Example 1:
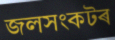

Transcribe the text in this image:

জলসংকটৰ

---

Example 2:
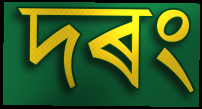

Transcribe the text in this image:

দৰং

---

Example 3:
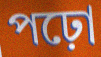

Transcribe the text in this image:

পঢ়ো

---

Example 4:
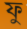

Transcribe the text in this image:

ফু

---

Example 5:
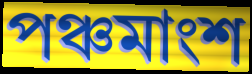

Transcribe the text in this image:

পঞ্চমাংশ